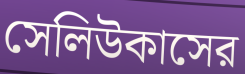
সেলিউকাসের